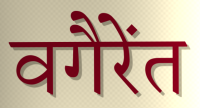
वगैरेंत